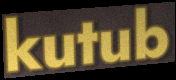
kutub